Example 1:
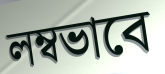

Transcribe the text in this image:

লম্বভাবে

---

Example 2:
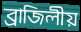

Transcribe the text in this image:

ব্রাজিলীয়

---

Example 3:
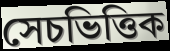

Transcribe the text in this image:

সেচভিত্তিক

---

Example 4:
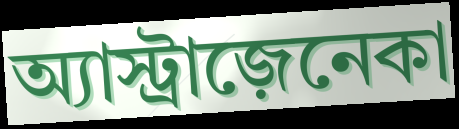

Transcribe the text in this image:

অ্যাস্ট্রাজ়েনেকা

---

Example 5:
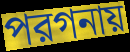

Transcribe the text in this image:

পরগনায়